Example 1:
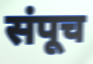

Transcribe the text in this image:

संपूच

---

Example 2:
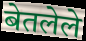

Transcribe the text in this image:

बेतलेले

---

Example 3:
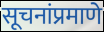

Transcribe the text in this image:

सूचनांप्रमाणे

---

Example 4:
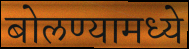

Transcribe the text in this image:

बोलण्यामध्ये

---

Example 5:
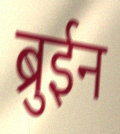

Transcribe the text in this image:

ब्रुईन